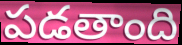
పడతాంది